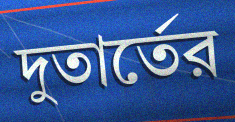
দুতার্তের